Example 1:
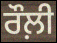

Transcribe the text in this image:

ਰੌਲ਼ੀ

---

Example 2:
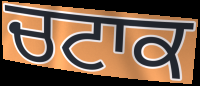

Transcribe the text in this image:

ਚਟਾਕ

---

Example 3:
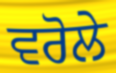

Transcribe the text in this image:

ਵਰੋਲੇ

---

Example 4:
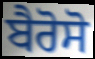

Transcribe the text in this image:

ਬੈਰੋਸੋ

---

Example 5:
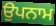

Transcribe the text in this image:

ਉਪਨਾਮ